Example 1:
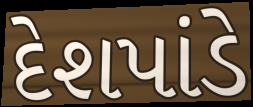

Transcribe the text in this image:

દેશપાંડે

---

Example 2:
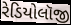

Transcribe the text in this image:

રેડિયોલૉજી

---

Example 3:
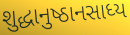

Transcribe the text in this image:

શુદ્ધાનુષ્ઠાનસાધ્ય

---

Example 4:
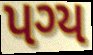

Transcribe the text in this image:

પગ્ય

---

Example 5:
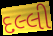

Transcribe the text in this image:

દલ્લી